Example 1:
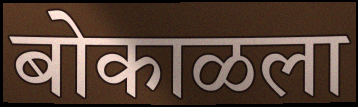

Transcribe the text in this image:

बोकाळला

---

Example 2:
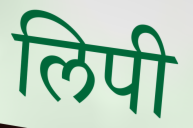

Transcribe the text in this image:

लिपी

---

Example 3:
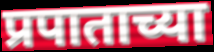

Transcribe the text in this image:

प्रपाताच्या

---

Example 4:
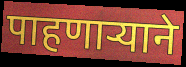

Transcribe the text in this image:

पाहणार्‍याने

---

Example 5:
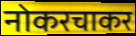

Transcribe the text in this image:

नोकरचाकर